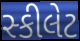
સ્કીલેટ